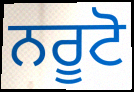
ਨਰੂਟੋ